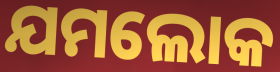
ଯମଲୋକ